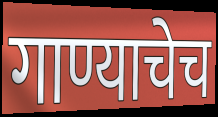
गाण्याचेच